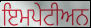
ਇਮਪੇਟੀਅਨ